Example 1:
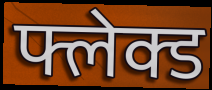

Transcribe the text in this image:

फ्लेक्ड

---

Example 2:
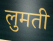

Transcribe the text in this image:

लुमती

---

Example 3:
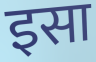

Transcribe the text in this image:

इसा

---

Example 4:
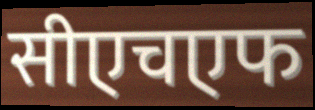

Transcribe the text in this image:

सीएचएफ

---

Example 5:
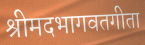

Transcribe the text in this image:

श्रीमदभागवतगीता